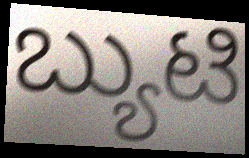
ಬ್ಯುಟಿ